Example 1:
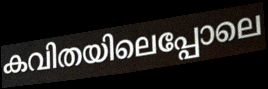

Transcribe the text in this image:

കവിതയിലെപ്പോലെ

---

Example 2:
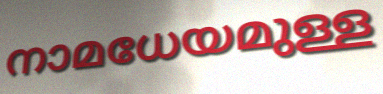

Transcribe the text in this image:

നാമധേയമുള്ള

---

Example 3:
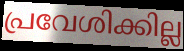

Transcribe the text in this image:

പ്രവേശിക്കില്ല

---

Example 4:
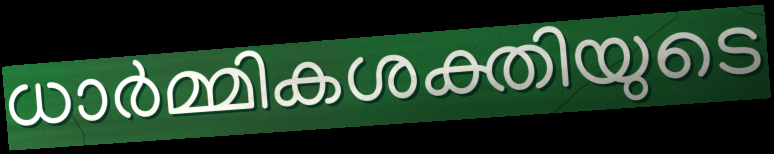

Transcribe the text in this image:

ധാർമ്മികശക്തിയുടെ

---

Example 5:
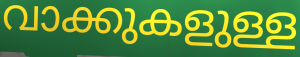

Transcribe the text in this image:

വാക്കുകളുള്ള